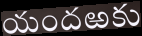
యందఱకు